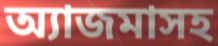
অ্যাজমাসহ